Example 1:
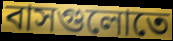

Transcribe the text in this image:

বাসগুলোতে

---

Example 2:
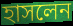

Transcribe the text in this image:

হাসলেন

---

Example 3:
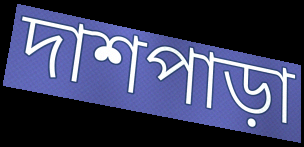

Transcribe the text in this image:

দাশপাড়া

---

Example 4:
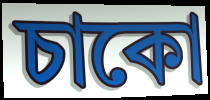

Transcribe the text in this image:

চাকো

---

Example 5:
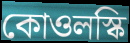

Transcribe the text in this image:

কোওলস্কি